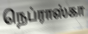
நெப்ராஸ்கா